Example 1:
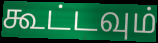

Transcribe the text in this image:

கூட்டவும்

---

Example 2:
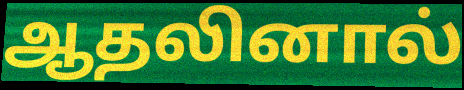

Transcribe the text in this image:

ஆதலினால்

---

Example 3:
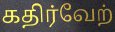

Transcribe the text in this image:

கதிர்வேற்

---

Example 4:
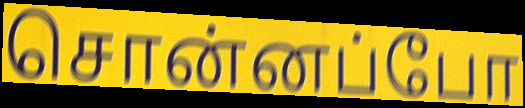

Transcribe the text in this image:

சொன்னப்போ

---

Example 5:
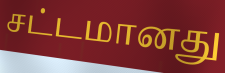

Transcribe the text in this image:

சட்டமானது